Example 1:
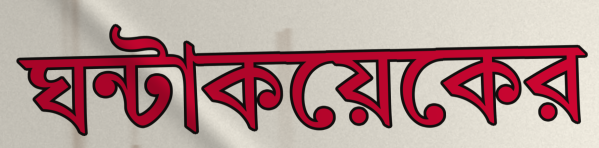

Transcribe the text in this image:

ঘন্টাকয়েকের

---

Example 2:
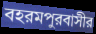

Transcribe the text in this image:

বহরমপুরবাসীর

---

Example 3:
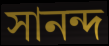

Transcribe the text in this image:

সানন্দ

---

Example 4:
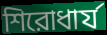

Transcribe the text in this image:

শিরোধার্য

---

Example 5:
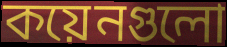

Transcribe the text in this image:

কয়েনগুলো